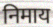
निमाय